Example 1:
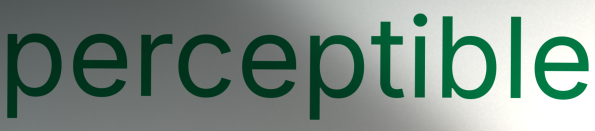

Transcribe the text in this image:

perceptible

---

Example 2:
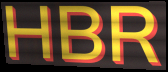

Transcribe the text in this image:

HBR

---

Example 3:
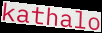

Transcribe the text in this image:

kathalo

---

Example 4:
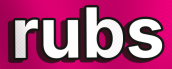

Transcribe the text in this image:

rubs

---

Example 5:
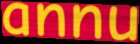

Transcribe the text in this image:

annu